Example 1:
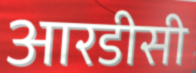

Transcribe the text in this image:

आरडीसी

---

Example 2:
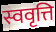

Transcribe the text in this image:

स्ववृत्ति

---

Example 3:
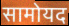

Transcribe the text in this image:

सामोयद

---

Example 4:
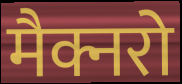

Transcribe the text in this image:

मैक्नरो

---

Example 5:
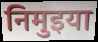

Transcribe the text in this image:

निमुइया